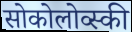
सोकोलोव्स्की